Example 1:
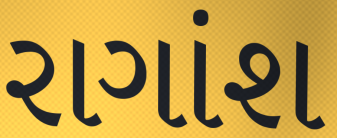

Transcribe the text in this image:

રાગાંશ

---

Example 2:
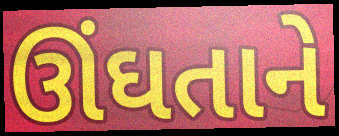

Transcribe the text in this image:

ઊંઘતાને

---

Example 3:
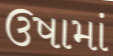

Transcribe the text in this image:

ઉષામાં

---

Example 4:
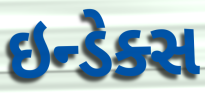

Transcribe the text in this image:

ઇન્ડેક્સ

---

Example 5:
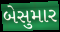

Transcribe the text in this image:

બેસુમાર